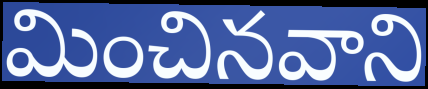
మించినవాని